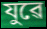
যুৱে